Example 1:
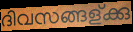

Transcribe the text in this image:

ദിവസങ്ങള്ക്കു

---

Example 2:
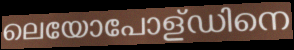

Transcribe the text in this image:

ലെയോപോള്ഡിനെ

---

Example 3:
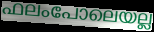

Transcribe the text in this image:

ഫലംപോലെയല്ല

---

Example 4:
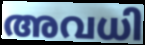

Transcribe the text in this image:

അവധി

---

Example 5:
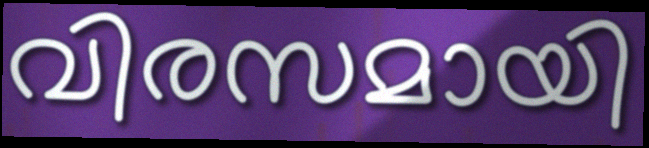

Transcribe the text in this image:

വിരസമായി